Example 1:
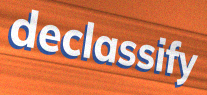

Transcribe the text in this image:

declassify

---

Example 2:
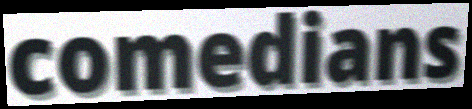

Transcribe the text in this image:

comedians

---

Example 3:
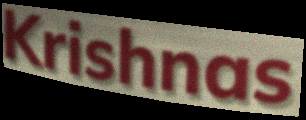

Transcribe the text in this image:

Krishnas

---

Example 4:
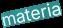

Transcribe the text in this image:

materia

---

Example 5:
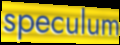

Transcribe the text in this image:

speculum